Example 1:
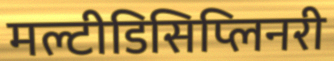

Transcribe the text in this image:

मल्टीडिसिप्लिनरी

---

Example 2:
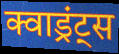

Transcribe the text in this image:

क्वाड्रंट्स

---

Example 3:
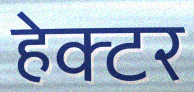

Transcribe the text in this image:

हेक्‍टर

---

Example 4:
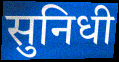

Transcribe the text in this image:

सुनिधी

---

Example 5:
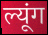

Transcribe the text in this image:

ल्यूंग